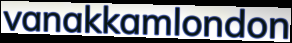
vanakkamlondon